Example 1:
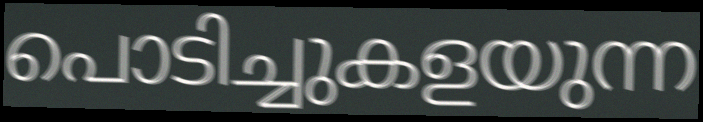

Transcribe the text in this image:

പൊടിച്ചുകളയുന്ന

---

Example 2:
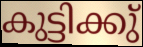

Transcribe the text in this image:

കുട്ടിക്കു്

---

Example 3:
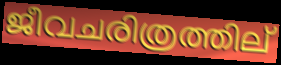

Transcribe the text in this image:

ജീവചരിത്രത്തില്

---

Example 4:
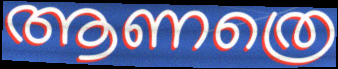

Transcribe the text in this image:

ആണത്രെ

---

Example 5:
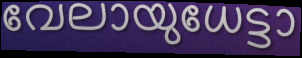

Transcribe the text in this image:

വേലായുധേട്ടാ